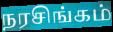
நரசிங்கம்